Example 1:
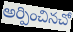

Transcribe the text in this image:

అర్పించినచో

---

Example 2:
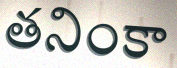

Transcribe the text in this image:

తనింకా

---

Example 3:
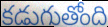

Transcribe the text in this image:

కడుగుతోంది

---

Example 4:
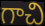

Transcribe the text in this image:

గాచి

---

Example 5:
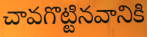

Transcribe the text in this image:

చావగొట్టినవానికి